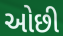
ઓછી